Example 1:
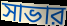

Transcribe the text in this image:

সাভার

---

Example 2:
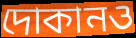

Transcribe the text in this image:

দোকানও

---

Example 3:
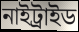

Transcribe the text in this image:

নাইট্রাইড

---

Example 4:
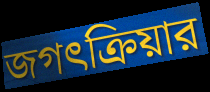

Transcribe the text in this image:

জগৎক্রিয়ার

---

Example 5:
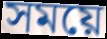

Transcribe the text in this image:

সময়ে